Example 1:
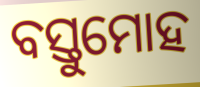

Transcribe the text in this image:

ବସ୍ତୁମୋହ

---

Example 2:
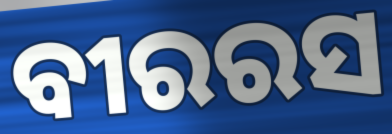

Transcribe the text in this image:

ବୀରରସ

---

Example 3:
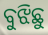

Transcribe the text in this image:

ବୁଝିଛୁ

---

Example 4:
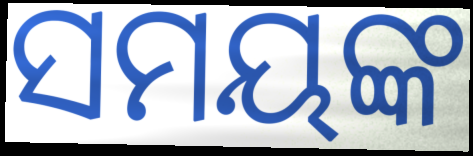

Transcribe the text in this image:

ସମୟଙ୍କ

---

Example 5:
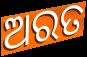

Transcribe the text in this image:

ଅରତ